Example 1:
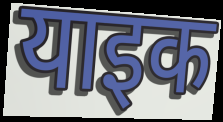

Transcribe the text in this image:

याइक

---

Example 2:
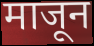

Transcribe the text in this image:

माजून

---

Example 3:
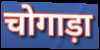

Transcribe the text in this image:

चोगाड़ा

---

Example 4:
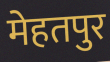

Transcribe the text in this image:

मेहतपुर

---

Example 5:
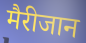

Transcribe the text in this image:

मैरीजान